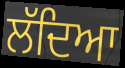
ਲੱਦਿਆ